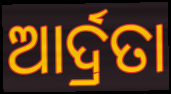
ଆର୍ଦ୍ରତା